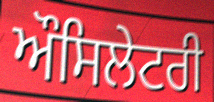
ਔਸਿਲੇਟਰੀ